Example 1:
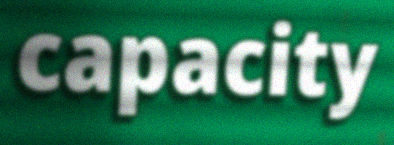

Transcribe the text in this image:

capacity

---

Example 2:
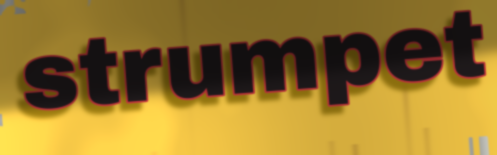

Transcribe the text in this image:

strumpet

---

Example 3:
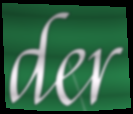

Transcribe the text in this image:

der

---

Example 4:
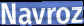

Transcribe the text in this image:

Navroz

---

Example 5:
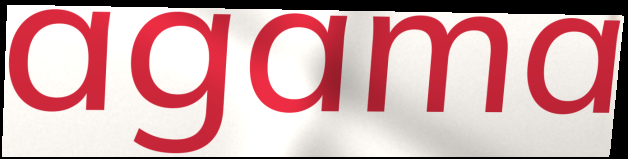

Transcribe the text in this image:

agama